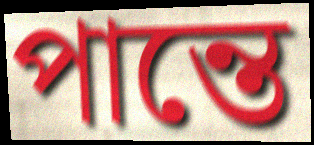
পান্তে